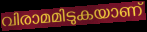
വിരാമമിടുകയാണ്